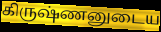
கிருஷ்ணனுடைய